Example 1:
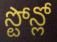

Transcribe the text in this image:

స్టోన్లో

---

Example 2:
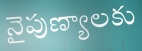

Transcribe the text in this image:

నైపుణ్యాలకు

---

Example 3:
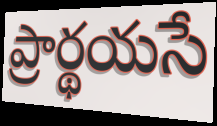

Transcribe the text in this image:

ప్రార్థయసే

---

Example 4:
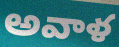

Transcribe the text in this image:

అవాళ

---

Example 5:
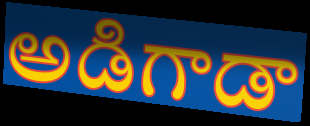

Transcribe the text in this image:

అడిగాడా